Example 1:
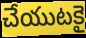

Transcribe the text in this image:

చేయుటకై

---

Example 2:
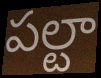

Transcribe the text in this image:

పల్టా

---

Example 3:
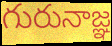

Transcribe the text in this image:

గురునాజ్ఞ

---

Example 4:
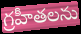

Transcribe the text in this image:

గ్రహీతలను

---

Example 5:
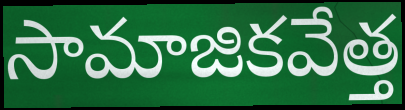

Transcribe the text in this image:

సామాజికవేత్త